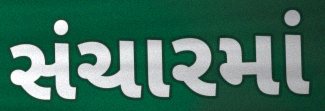
સંચારમાં